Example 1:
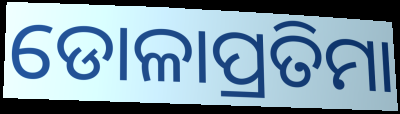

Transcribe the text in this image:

ଡୋଳାପ୍ରତିମା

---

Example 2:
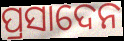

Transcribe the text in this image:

ପ୍ରସାଦେନ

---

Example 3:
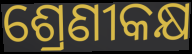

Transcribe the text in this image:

ଶ୍ରେଣୀକକ୍ଷ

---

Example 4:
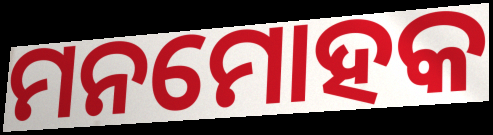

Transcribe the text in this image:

ମନମୋହକ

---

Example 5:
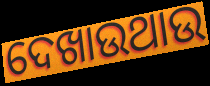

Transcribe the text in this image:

ଦେଖାଉଥାଉ